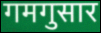
गमगुसार